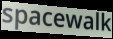
spacewalk